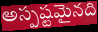
అస్పష్టమైనది